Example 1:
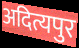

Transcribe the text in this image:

अदित्यपुर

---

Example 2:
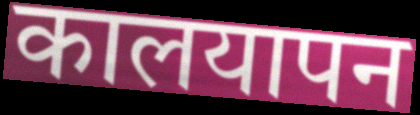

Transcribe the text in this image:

कालयापन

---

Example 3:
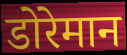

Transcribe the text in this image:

डोरेमान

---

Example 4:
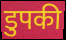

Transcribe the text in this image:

डुपकी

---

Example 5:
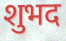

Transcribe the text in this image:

शुभद